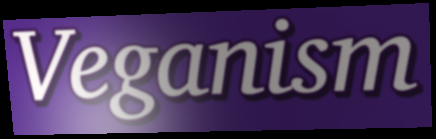
Veganism